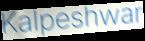
Kalpeshwar